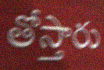
తోస్తారు